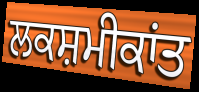
ਲਕਸ਼ਮੀਕਾਂਤ